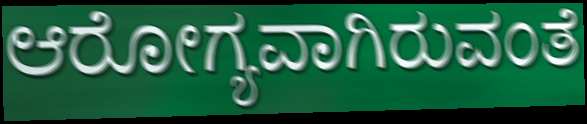
ಆರೋಗ್ಯವಾಗಿರುವಂತೆ